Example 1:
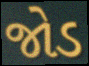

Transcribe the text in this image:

જોડ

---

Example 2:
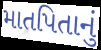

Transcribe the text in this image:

માતપિતાનું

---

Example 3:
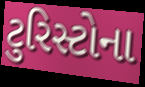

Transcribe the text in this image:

ટુરિસ્ટોના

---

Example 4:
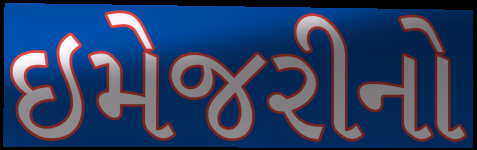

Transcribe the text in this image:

ઇમેજરીનો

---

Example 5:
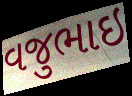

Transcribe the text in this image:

વજુભાઇ